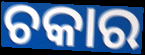
ଚକାର